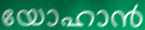
യോഹാൻ